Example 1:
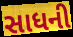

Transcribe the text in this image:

સાધની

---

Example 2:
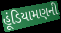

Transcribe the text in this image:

હૂંડિયામણની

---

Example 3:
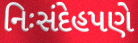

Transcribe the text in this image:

નિઃસંદેહપણે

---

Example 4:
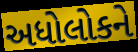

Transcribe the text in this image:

અધોલોકને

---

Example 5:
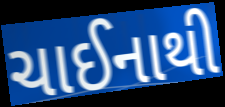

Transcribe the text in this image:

ચાઈનાથી